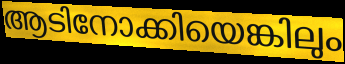
ആടിനോക്കിയെങ്കിലും